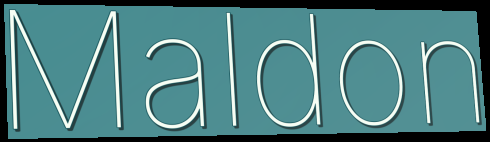
Maldon